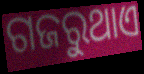
ଗଜରୁଥାଏ